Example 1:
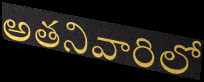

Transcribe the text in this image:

అతనివారిలో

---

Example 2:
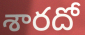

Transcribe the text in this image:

శారదో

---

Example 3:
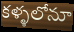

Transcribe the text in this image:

కళ్ళలోనూ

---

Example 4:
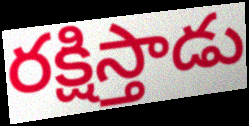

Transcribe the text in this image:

రక్షిస్తాడు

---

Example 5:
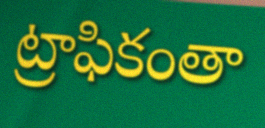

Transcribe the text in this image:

ట్రాఫికంతా